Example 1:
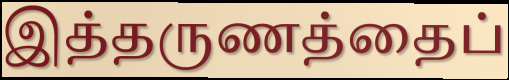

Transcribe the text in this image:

இத்தருணத்தைப்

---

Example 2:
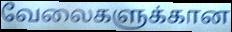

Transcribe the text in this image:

வேலைகளுக்கான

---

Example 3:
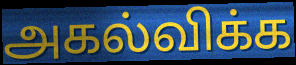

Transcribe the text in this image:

அகல்விக்க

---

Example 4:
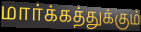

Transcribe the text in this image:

மார்க்கத்துக்கும்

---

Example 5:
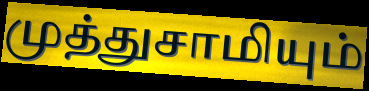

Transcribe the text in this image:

முத்துசாமியும்